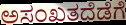
ಅಸಂಖತದೆಡೆಗೆ